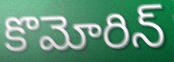
కొమోరిన్